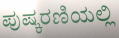
ಪುಷ್ಕರಣಿಯಲ್ಲಿ